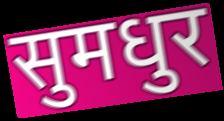
सुमधुर